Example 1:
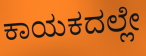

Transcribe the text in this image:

ಕಾಯಕದಲ್ಲೇ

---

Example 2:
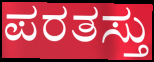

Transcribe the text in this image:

ಪರತಸ್ತು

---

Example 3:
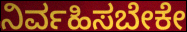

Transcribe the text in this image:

ನಿರ್ವಹಿಸಬೇಕೇ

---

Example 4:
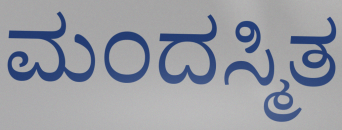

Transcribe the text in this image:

ಮಂದಸ್ಮಿತ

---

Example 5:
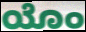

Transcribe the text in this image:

ಯೊಂ